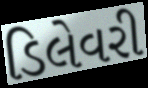
ડિલેવરી